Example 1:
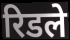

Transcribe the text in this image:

रिडले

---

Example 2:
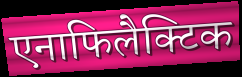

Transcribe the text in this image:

एनाफिलैक्टिक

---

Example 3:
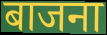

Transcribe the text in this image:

बाजना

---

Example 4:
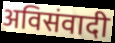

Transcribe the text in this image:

अविसंवादी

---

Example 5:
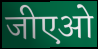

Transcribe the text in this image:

जीएओ